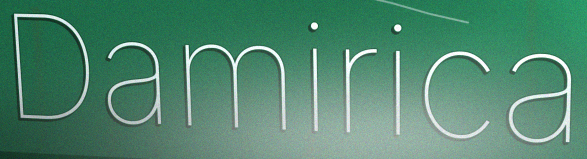
Damirica